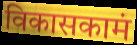
विकासकामं